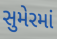
સુમેરમાં